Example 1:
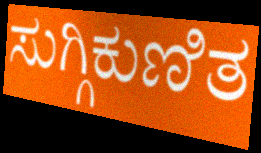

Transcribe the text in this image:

ಸುಗ್ಗಿಕುಣಿತ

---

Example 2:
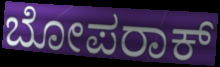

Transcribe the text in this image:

ಬೋಪರಾಕ್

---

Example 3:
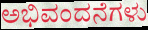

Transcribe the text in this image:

ಅಭಿವಂದನೆಗಳು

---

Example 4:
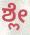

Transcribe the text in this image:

ಶ್ಲೇ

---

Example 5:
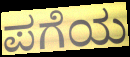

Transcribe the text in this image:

ಪಗೆಯ